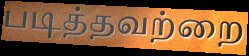
படித்தவற்றை